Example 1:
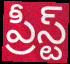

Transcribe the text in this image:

ప్రీస్ట్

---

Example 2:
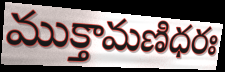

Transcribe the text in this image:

ముక్తామణిధరః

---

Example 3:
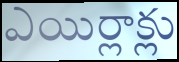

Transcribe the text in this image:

ఎయిర్లాక్లు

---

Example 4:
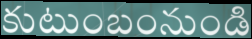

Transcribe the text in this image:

కుటుంబంనుండి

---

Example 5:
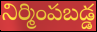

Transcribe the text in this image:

నిర్మింపబడ్డ